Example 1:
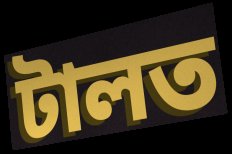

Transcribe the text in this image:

টালত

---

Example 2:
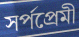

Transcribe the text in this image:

সর্পপ্রেমী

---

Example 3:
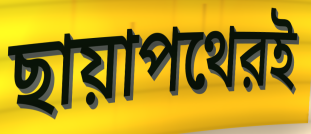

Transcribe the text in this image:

ছায়াপথেরই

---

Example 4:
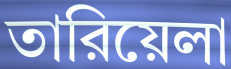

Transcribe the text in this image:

তারিয়েলা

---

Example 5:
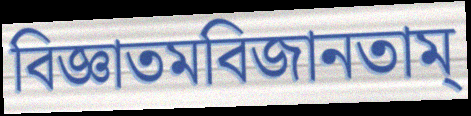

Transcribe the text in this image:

বিজ্ঞাতমবিজানতাম্